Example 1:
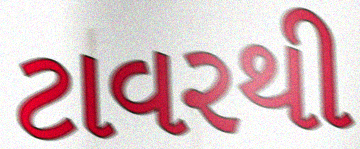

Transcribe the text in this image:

ટાવરથી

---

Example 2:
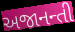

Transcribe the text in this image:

અજાનન્તી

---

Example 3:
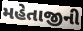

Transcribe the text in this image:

મહેતાજીની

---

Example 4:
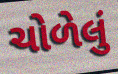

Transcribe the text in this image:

ચોળેલું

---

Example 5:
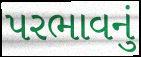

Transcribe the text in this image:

પરભાવનું